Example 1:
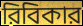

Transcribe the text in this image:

রিবিকার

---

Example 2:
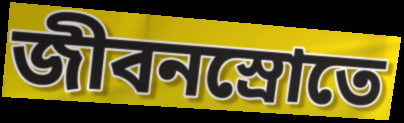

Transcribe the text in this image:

জীবনস্রোতে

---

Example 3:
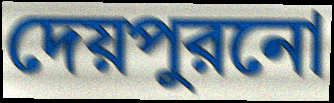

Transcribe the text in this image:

দেয়পুরনো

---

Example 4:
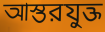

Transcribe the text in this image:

আস্তরযুক্ত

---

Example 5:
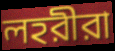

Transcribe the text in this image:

লহরীরা